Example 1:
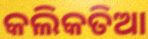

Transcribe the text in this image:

କଲିକତିଆ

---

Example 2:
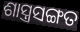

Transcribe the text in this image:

ଶାସ୍ତ୍ରସଙ୍ଗତ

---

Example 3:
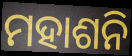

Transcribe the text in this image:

ମହାଶନି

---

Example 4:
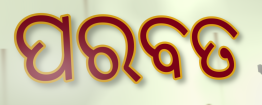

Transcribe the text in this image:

ପରବତ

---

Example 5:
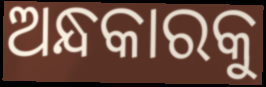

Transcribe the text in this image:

ଅନ୍ଧକାରକୁ